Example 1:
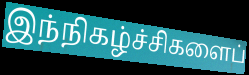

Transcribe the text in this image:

இந்நிகழ்ச்சிகளைப்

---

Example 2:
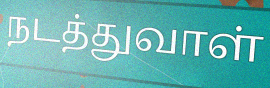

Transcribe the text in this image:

நடத்துவாள்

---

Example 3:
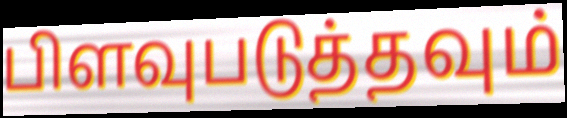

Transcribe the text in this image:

பிளவுபடுத்தவும்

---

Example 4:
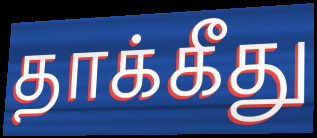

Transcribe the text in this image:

தாக்கீது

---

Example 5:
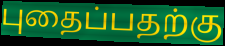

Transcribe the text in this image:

புதைப்பதற்கு